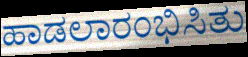
ಹಾಡಲಾರಂಭಿಸಿತು